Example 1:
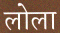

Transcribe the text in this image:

लोला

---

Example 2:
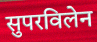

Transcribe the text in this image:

सुपरविलेन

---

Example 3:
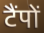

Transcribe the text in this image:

टैंपों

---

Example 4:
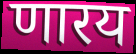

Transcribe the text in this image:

णारय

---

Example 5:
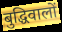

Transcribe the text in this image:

बुद्धिवालों